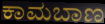
ಕಾಮಬಾಣ